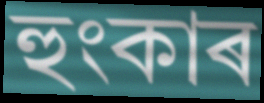
হুংকাৰ